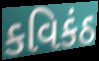
કવિકંઠ